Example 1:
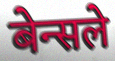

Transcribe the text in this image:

बेन्सले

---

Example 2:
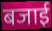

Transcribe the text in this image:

बजाई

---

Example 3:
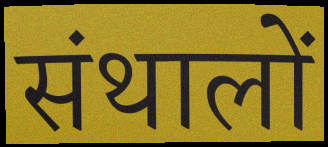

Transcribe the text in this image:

संथालों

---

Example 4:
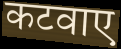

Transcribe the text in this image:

कटवाए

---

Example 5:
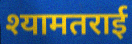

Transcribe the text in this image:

श्यामतराई